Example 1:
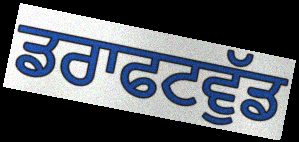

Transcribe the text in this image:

ਡਰਾਫਟਵੁੱਡ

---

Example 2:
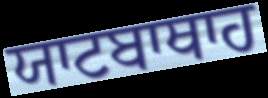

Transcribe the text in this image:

ਯਾਟਬਾਥਾਹ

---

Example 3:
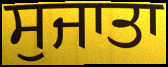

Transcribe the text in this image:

ਸੁਜਾਤਾ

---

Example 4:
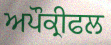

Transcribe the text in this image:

ਅਪੌਕ੍ਰੀਫਲ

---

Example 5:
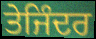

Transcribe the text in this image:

ਤੇਜਿੰਦਰ